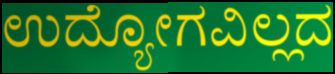
ಉದ್ಯೋಗವಿಲ್ಲದ